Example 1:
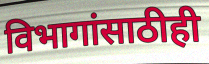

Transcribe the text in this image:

विभागांसाठीही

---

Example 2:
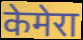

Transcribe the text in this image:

केमेरा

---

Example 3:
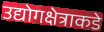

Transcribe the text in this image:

उद्योगक्षेत्राकडे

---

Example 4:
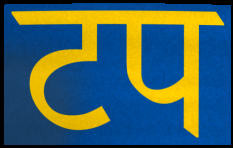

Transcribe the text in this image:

टप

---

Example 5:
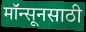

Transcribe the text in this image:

मॉन्सूनसाठी